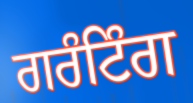
ਗਰੰਟਿੰਗ